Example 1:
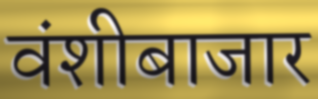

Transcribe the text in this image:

वंशीबाजार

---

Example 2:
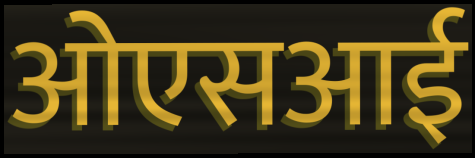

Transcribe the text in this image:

ओएसआई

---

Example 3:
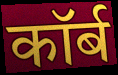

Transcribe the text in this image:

कॉर्ब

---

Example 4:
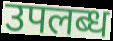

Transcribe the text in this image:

उपलब्‍ध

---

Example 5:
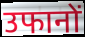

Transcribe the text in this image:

उफानों